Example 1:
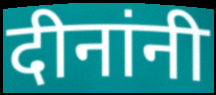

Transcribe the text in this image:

दीनांनी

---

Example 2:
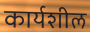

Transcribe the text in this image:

कार्यशील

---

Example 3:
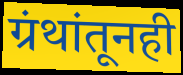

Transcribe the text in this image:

ग्रंथांतूनही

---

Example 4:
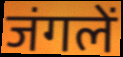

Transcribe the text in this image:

जंगलें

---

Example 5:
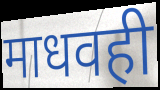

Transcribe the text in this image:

माधवही